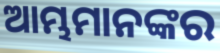
ଆମ୍ଭମାନଙ୍କର